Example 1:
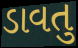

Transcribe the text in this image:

ડાવતુ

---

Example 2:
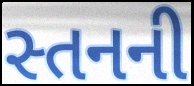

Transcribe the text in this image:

સ્તનની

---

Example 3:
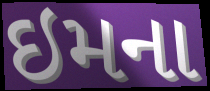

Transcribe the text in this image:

ઇમના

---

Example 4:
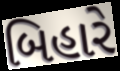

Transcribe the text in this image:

બિહારે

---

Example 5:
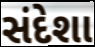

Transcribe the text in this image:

સંદેશા